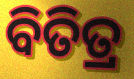
ବିତିତ୍ର